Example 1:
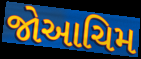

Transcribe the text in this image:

જોઆચિમ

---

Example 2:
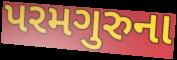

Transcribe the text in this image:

પરમગુરુના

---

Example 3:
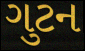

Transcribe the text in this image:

ગુટન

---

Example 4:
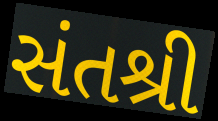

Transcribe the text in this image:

સંતશ્રી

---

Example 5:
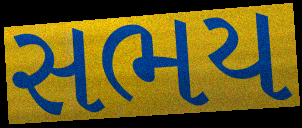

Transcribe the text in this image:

સભય